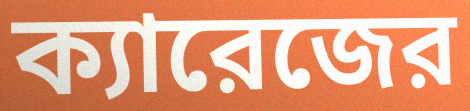
ক্যারেজের